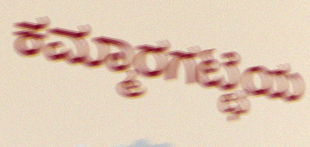
ಕಮ್ಮಾರಗಟ್ಟೆಯ